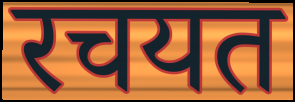
रचयत